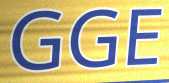
GGE